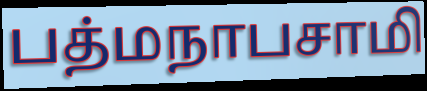
பத்மநாபசாமி